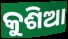
କୁଶିଆ